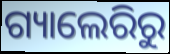
ଗ୍ୟାଲେରିରୁ